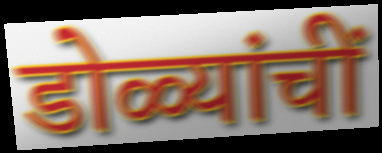
डोळ्यांचीं